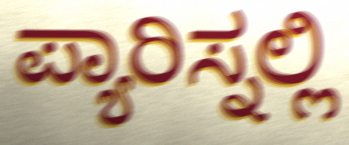
ಪ್ಯಾರಿಸ್ನಲ್ಲಿ